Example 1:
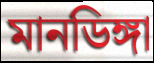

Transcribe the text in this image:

মানডিঙ্গা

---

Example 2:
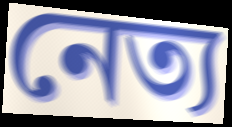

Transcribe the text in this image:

নেত্য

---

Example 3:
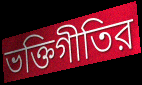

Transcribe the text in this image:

ভক্তিগীতির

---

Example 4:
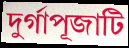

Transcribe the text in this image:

দুর্গাপূজাটি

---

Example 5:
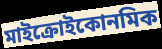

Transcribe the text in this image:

মাইক্রোইকোনমিক